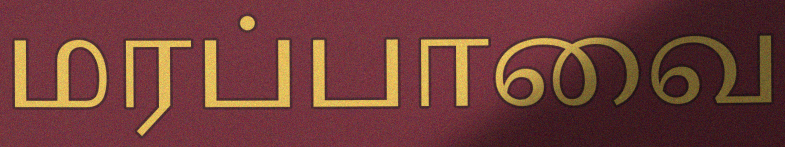
மரப்பாவை